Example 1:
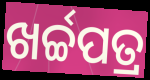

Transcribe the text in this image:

ଖର୍ଚ୍ଚପତ୍ର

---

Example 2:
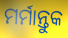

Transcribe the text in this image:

ମର୍ମାନ୍ତୁକ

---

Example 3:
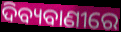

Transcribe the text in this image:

ଦିବ୍ୟବାଣୀରେ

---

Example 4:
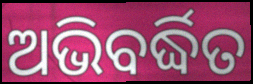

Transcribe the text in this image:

ଅଭିବର୍ଦ୍ଧିତ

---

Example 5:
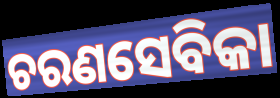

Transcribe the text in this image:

ଚରଣସେବିକା